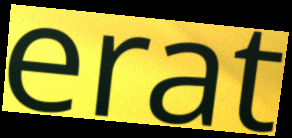
erat